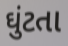
ઘુંટતા